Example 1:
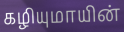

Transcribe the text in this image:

கழியுமாயின்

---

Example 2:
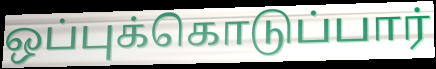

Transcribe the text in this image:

ஒப்புக்கொடுப்பார்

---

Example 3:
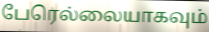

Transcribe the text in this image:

பேரெல்லையாகவும்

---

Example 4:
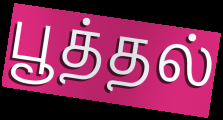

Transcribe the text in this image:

பூத்தல்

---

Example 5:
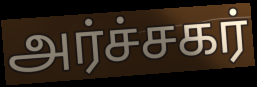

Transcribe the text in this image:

அர்ச்சகர்